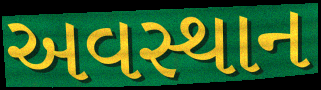
અવસ્થાન